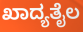
ಖಾದ್ಯತೈಲ